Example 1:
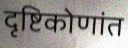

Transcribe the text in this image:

दृष्टिकोणांत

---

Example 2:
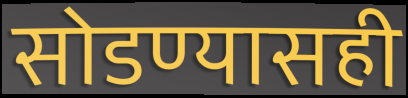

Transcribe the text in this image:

सोडण्यासही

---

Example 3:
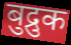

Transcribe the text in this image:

बुद्रुक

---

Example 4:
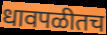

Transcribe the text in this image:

धावपळीतच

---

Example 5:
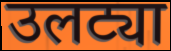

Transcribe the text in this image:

उलट्या